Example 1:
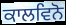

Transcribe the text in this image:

ਕਾਲਵਿਨੋ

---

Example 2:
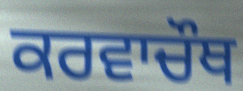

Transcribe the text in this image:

ਕਰਵਾਚੌਥ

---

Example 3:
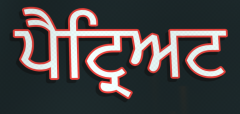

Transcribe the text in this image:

ਪੈਟ੍ਰਿਅਟ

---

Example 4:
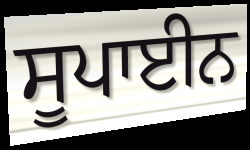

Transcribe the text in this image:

ਸੂਪਾਈਨ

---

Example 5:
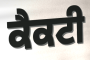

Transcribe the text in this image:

ਕੈਕਟੀ